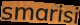
smarisi